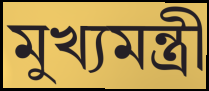
মুখ্যমন্ত্ৰী